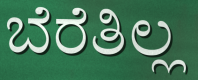
ಬೆರೆತಿಲ್ಲ